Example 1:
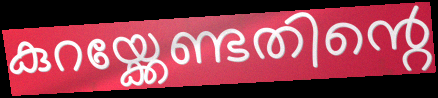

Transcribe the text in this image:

കുറയ്ക്കേണ്ടതിന്റെ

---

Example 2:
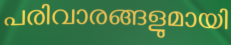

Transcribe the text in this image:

പരിവാരങ്ങളുമായി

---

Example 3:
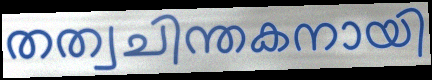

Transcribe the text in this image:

തത്വചിന്തകനായി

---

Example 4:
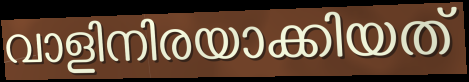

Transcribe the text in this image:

വാളിനിരയാക്കിയത്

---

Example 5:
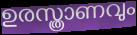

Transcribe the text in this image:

ഉരസ്ത്രാണവും